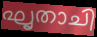
ഘൃതാചി